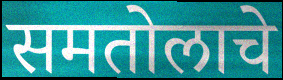
समतोलाचे